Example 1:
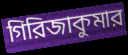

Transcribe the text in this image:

গিরিজাকুমার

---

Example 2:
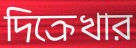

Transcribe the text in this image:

দিক্রেখার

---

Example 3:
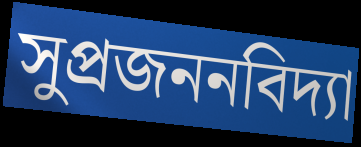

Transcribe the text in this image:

সুপ্রজননবিদ্যা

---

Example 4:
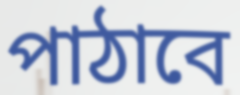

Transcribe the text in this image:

পাঠাবে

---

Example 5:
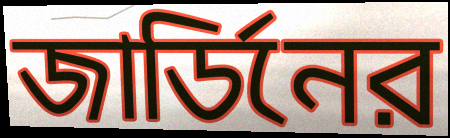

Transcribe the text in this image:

জার্ডিনের